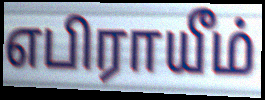
எபிராயீம்